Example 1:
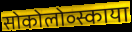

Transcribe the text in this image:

सोकोलोव्स्काया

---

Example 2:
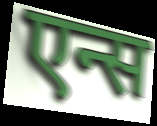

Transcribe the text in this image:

एन्स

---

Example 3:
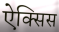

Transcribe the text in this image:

ऐक्सिस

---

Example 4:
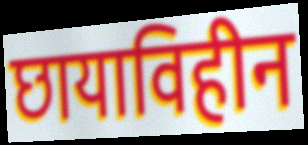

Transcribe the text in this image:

छायाविहीन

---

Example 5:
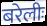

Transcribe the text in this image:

बरेलीः